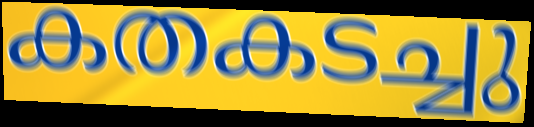
കതകടച്ചു